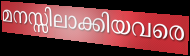
മനസ്സിലാക്കിയവരെ